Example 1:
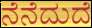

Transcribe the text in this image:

ನೆನೆದುದೆ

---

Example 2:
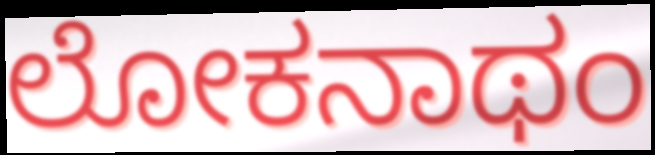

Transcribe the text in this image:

ಲೋಕನಾಥಂ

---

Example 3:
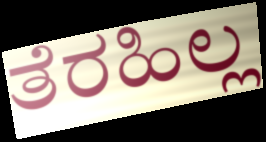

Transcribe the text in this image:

ತೆರಹಿಲ್ಲ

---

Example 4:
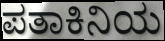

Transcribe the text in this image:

ಪತಾಕಿನಿಯ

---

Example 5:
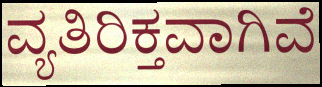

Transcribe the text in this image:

ವ್ಯತಿರಿಕ್ತವಾಗಿವೆ